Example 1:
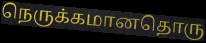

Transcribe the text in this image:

நெருக்கமானதொரு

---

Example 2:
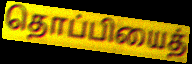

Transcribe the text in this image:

தொப்பியைத்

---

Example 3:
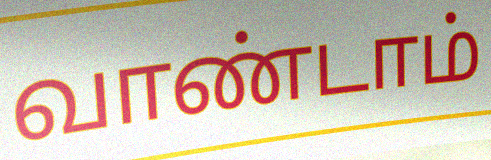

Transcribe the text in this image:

வாண்டாம்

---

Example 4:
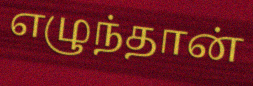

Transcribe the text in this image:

எழுந்தான்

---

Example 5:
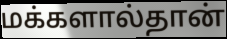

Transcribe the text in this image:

மக்களால்தான்